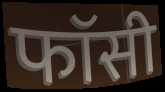
फॉसी